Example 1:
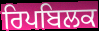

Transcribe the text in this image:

ਰਿਪਬਿਲਕ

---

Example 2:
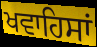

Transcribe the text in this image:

ਖਵਾਹਿਸਾਂ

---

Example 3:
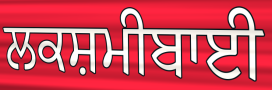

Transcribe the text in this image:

ਲਕਸ਼ਮੀਬਾਈ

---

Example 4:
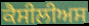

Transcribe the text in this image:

ਕੈਸੀਲੀਅਸ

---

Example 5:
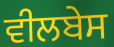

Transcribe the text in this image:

ਵੀਲਬੇਸ